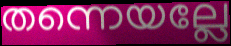
തന്നെയല്ലേ